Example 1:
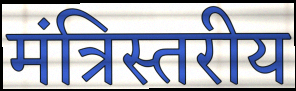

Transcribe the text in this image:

मंत्रिस्तरीय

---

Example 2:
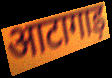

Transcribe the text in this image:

आटागाड़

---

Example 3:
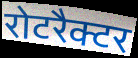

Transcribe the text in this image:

रोटरैक्टर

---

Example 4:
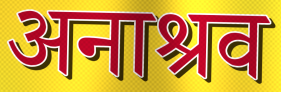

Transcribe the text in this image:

अनाश्रव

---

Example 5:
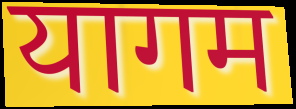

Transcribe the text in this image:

यागम